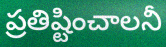
ప్రతిష్టించాలనీ